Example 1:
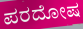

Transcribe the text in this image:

ಪರದೋಷ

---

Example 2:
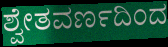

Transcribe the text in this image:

ಶ್ವೇತವರ್ಣದಿಂದ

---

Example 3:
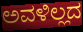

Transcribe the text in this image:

ಅವಳಿಲ್ಲದ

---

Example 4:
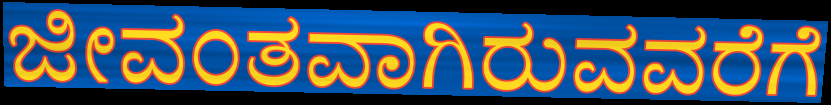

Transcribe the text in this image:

ಜೀವಂತವಾಗಿರುವವರೆಗೆ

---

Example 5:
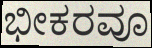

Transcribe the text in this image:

ಭೀಕರವೂ